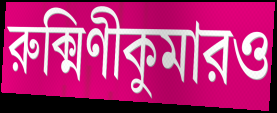
রুক্মিণীকুমারও